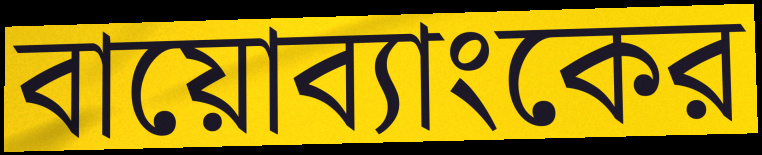
বায়োব্যাংকের